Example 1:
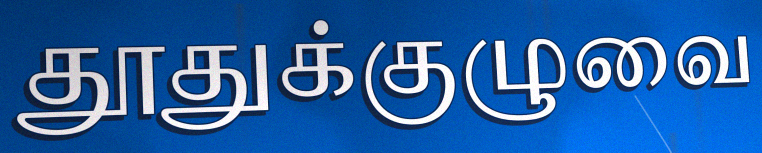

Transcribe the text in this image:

தூதுக்குழுவை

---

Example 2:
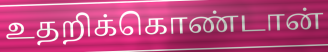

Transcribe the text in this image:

உதறிக்கொண்டான்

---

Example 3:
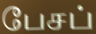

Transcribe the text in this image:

பேசப்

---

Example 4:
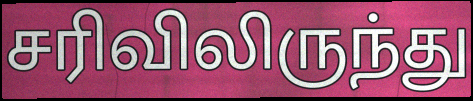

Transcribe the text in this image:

சரிவிலிருந்து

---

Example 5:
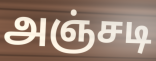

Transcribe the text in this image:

அஞ்சடி